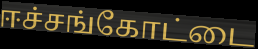
ஈச்சங்கோட்டை